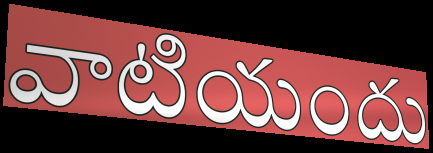
వాటియందు